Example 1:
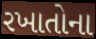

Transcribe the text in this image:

રખાતોના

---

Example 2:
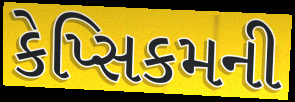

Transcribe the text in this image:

કેપ્સિકમની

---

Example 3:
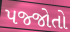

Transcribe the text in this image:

પજ્જોતો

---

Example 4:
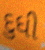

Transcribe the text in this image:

દુધી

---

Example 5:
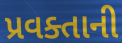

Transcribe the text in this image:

પ્રવક્તાની